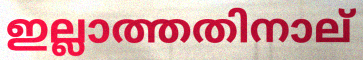
ഇല്ലാത്തതിനാല്